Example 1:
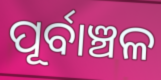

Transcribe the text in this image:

ପୂର୍ବାଞ୍ଚଳ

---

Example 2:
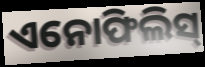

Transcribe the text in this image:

ଏନୋଫିଲିସ୍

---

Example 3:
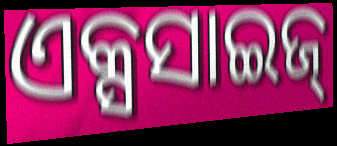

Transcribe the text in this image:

ଏକ୍ସସାଇଜ୍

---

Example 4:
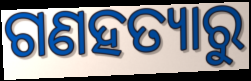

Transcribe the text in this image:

ଗଣହତ୍ୟାରୁ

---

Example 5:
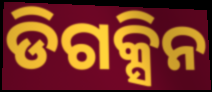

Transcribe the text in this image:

ଡିଗକ୍ସିନ